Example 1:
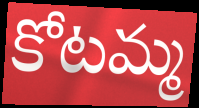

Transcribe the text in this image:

కోటమ్మ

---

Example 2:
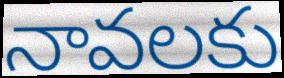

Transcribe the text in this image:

నావలకు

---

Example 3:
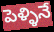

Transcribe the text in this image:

పెళ్ళినే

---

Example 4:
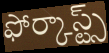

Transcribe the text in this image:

ఫోర్కాస్ట్స్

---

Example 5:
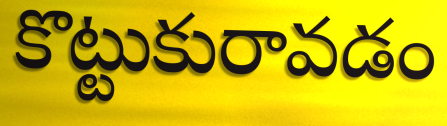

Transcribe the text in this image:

కొట్టుకురావడం